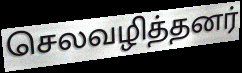
செலவழித்தனர்